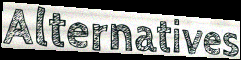
Alternatives